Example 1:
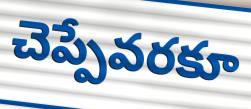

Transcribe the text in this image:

చెప్పేవరకూ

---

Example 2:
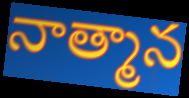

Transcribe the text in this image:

నాత్మాన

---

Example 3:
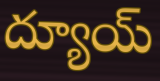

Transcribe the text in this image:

ద్యూయ్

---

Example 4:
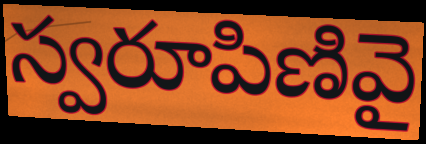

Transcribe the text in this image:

స్వరూపిణివై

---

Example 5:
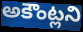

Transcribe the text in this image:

అకౌంట్లని